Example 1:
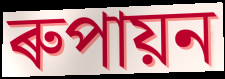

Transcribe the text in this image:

ৰুপায়ন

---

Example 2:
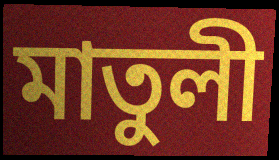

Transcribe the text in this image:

মাতুলী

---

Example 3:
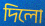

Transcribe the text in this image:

দিলো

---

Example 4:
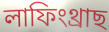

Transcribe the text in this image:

লাফিংথ্ৰাছ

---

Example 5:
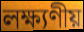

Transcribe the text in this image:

লক্ষ্যণীয়